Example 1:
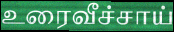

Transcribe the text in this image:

உரைவீச்சாய்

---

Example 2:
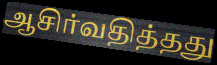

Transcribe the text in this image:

ஆசிர்வதித்தது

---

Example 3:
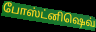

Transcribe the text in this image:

போஸ்ட்னிஷெவ்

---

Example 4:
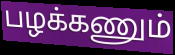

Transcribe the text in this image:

பழக்கணும்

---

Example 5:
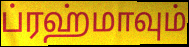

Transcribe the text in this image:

ப்ரஹ்மாவும்